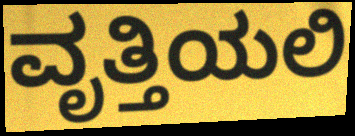
ವೃತ್ತಿಯಲಿ